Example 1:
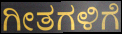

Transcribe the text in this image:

ಗೀತಗಳಿಗೆ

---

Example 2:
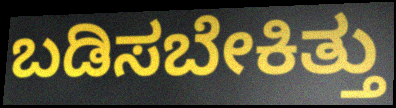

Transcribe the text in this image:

ಬಡಿಸಬೇಕಿತ್ತು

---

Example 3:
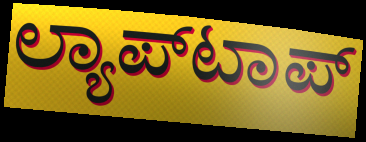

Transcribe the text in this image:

ಲ್ಯಾಪ್‍ಟಾಪ್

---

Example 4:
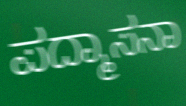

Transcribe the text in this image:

ಪದ್ಮಾಸನಾ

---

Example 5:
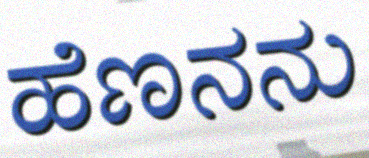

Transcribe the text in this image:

ಹೆಣನನು